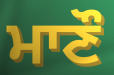
ਮਾਣੌ